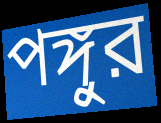
পঙ্গুর